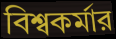
বিশ্বকর্মার